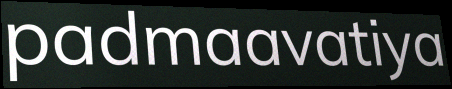
padmaavatiya